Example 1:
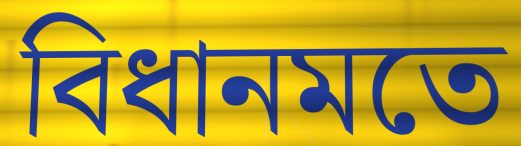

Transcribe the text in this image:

বিধানমতে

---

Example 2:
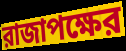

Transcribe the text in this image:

রাজাপক্ষের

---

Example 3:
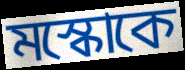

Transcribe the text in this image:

মস্কোকে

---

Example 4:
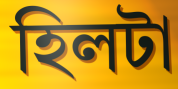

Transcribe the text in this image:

হিলটা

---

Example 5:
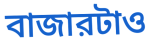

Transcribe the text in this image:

বাজারটাও